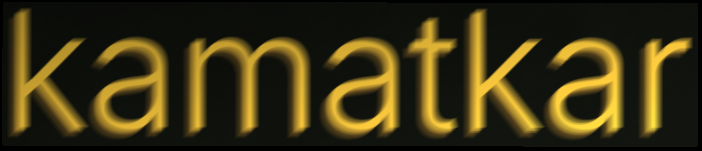
kamatkar